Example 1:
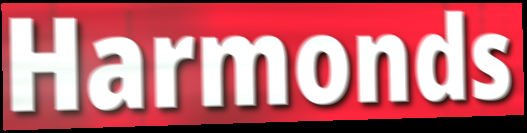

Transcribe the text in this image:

Harmonds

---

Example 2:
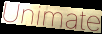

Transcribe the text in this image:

Unimate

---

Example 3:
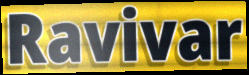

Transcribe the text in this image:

Ravivar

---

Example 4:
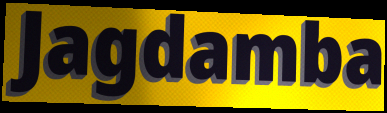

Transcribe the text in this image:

Jagdamba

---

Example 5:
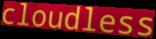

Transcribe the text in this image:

cloudless